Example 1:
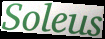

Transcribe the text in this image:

Soleus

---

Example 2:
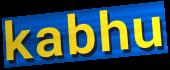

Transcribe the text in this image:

kabhu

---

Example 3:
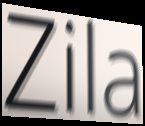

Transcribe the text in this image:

Zila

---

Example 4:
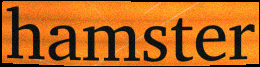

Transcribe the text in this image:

hamster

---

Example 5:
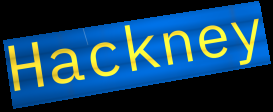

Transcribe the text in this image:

Hackney